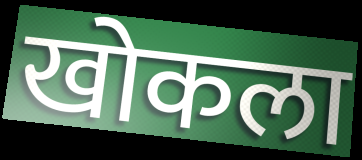
खोकला